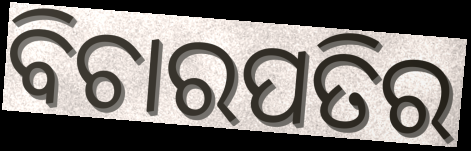
ବିଚାରପତିର